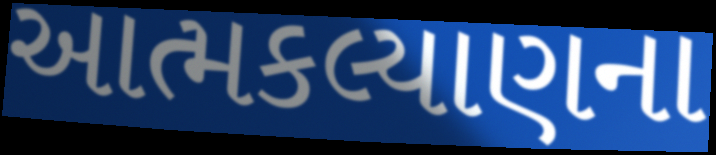
આત્મકલ્યાણના